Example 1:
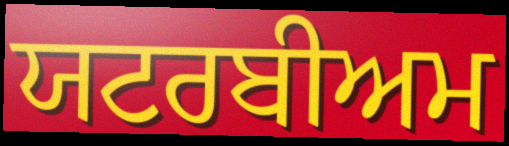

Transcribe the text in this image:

ਯਟਰਬੀਅਮ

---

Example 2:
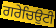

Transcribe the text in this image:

ਗਰੇਚਿਉਟੀ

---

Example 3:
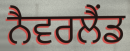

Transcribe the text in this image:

ਨੈਵਰਲੈਂਡ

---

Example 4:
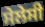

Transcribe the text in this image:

ਸੇਲੇਸੀ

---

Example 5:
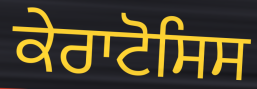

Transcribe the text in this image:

ਕੇਰਾਟੋਸਿਸ